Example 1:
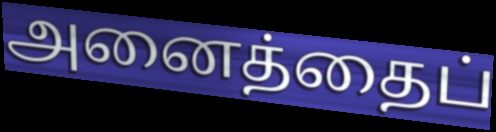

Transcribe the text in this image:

அனைத்தைப்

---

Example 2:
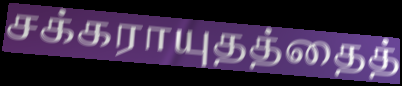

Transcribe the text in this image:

சக்கராயுதத்தைத்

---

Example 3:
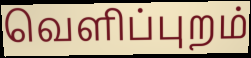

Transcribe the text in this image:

வெளிப்புறம்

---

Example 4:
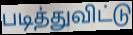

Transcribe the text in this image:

படித்துவிட்டு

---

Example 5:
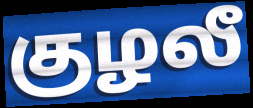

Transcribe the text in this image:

குழலீ